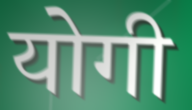
योगी